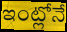
ఇంట్లోనే